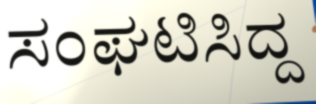
ಸಂಘಟಿಸಿದ್ದ